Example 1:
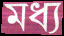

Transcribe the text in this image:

মধ্য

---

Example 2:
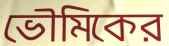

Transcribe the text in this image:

ভৌমিকের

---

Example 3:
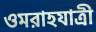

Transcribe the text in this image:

ওমরাহযাত্রী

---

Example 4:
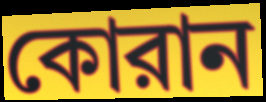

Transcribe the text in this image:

কোরান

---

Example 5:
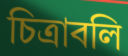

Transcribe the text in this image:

চিত্রাবলি